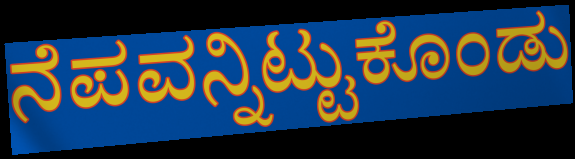
ನೆಪವನ್ನಿಟ್ಟುಕೊಂಡು